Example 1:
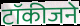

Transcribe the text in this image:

टॉकीजने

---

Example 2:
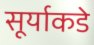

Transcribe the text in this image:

सूर्याकडे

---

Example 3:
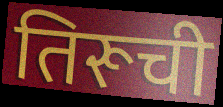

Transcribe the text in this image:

तिरूची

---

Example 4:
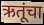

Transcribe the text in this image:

ऋतूंचा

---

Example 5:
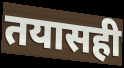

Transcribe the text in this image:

तयासही